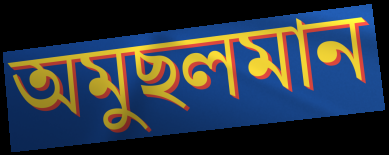
অমুছলমান